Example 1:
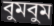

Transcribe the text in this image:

বুমবুম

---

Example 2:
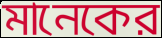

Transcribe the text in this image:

মানেকের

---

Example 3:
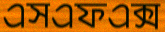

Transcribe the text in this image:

এসএফএক্স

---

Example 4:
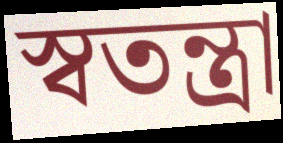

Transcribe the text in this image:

স্বতন্ত্রা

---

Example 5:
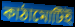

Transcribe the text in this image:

কাঠামোটিই